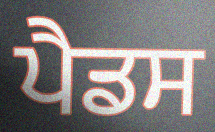
ਪੈਡਸ